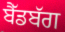
ਬੈੱਡਬੱਗ